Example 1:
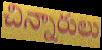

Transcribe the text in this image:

చిన్నారులు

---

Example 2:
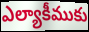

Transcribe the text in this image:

ఎల్యాకీముకు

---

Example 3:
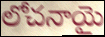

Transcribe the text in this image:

లోచనాయై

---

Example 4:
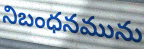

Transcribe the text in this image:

నిబంధనమును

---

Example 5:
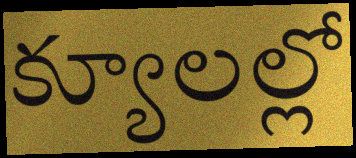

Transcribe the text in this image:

క్యూలల్లో